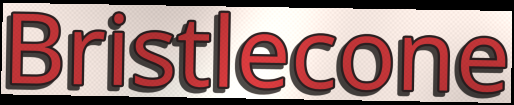
Bristlecone